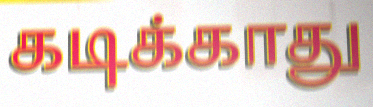
கடிக்காது